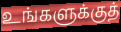
உங்களுக்குத்